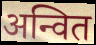
अन्वित